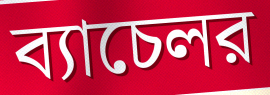
ব্যাচেলর